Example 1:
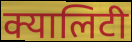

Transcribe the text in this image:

क्यालिटी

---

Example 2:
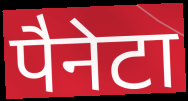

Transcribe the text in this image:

पैनेटा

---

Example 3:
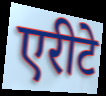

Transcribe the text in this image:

एरीटे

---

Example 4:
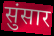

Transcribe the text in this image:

सुंसार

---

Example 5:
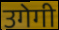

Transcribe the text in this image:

उगेगी